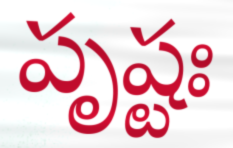
పృష్టః